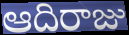
ఆదిరాజు